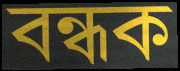
বন্ধক